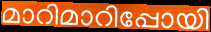
മാറിമാറിപ്പോയി